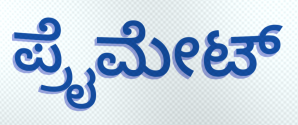
ಪ್ರೈಮೇಟ್